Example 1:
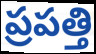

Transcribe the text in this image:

ప్రపత్తి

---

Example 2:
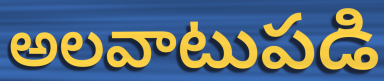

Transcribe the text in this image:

అలవాటుపడి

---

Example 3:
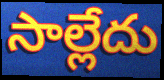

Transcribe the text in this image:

సాల్లేదు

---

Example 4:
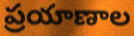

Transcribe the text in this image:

ప్రయాణాల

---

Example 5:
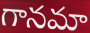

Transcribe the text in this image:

గానమా